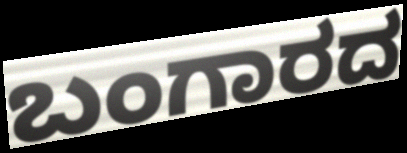
ಬಂಗಾರದ